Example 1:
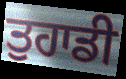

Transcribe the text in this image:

ਤੁਹਾਡੀ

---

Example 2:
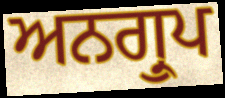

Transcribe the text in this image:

ਅਨਗ੍ਰੁਪ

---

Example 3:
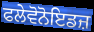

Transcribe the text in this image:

ਫਲੇਵੋਨੋਇਡਜ਼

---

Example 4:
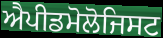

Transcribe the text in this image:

ਐਪੀਡਮੋਲੋਜਿਸਟ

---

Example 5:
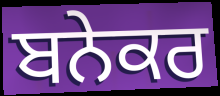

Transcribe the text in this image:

ਬਨੇਕਰ